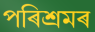
পৰিশ্ৰমৰ